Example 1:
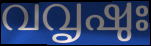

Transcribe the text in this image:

വവൃഷുഃ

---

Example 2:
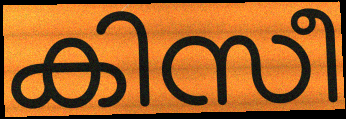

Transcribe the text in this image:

കിസീ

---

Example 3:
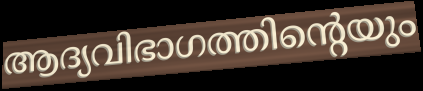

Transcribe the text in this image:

ആദ്യവിഭാഗത്തിന്റെയും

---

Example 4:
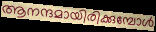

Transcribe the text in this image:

ആനന്ദമായിരിക്കുമ്പോൾ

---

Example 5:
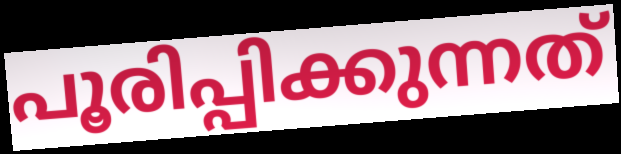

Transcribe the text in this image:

പൂരിപ്പിക്കുന്നത്